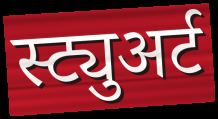
स्ट्युअर्ट